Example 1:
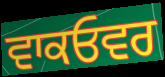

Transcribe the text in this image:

ਵਾਕਓਵਰ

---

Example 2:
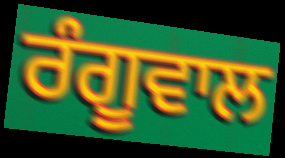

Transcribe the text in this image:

ਰੰਗੂਵਾਲ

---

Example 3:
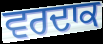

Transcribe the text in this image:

ਵਰਦਾਕ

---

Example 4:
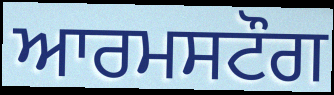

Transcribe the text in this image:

ਆਰਮਸਟੌਗ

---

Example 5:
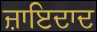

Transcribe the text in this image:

ਜ਼ਾਇਦਾਦ